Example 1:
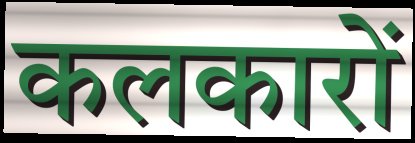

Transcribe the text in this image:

कलकारों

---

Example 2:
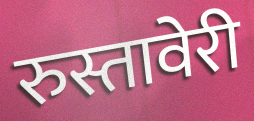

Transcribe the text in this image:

रुस्तावेरी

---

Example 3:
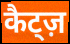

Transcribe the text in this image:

कैट्ज़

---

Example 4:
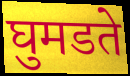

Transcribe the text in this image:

घुमडते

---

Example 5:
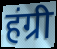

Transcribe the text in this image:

हंग्री